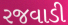
રજવાડી